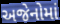
અજેનોમાં